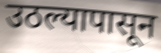
उठल्यापासून